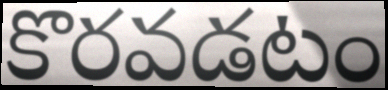
కొరవడటం